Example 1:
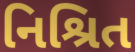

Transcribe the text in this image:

નિશ્રિત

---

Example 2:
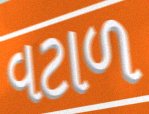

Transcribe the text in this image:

વટાળ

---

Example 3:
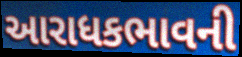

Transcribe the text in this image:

આરાધકભાવની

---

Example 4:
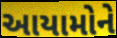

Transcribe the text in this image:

આયામોને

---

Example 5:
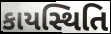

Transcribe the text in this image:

કાયસ્થિતિ